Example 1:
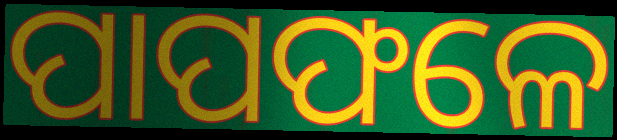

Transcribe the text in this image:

ପାପଫଳେ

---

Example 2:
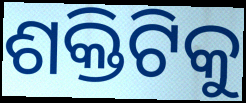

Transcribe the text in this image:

ଶକ୍ତିଟିକୁ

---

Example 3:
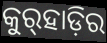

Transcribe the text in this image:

କୁର୍‍ହାଡ଼ିର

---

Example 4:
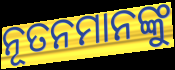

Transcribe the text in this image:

ନୂତନମାନଙ୍କୁ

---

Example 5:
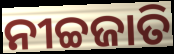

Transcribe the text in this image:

ନୀଚ୍ଚଜାତି